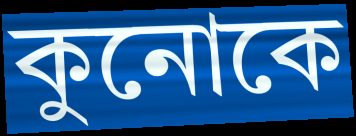
কুনোকে